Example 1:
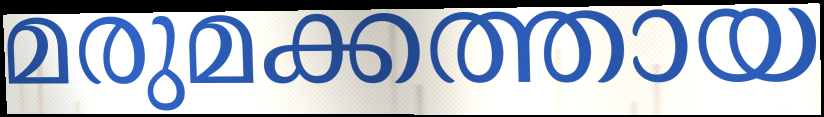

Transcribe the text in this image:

മരുമക്കത്തായ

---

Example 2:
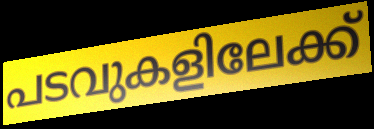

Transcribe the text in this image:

പടവുകളിലേക്ക്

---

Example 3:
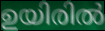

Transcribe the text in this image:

ഉയിരിൽ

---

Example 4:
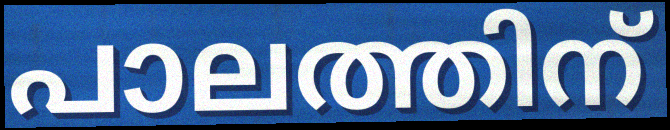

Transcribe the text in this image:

പാലത്തിന്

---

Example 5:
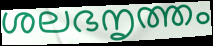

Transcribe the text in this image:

ശലഭനൃത്തം